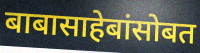
बाबासाहेबांसोबत